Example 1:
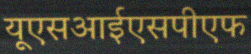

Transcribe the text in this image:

यूएसआईएसपीएफ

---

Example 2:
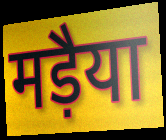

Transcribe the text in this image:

मड़ैया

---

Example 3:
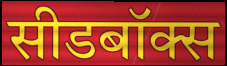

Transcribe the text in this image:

सीडबॉक्स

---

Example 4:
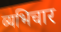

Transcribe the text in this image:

व्यभिचार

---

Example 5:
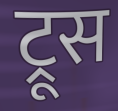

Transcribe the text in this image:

ट्रूस